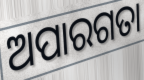
ଅପାରଗତା